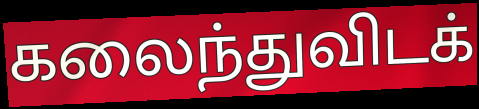
கலைந்துவிடக்